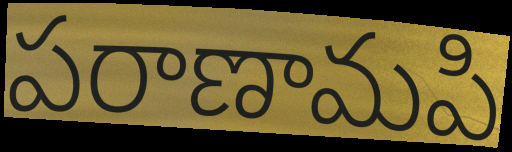
పరాణామపి